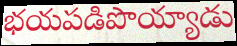
భయపడిపొయ్యాడు